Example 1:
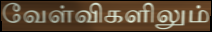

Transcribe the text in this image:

வேள்விகளிலும்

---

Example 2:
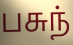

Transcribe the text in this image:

பசுந்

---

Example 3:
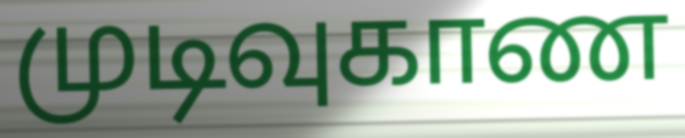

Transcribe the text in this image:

முடிவுகாண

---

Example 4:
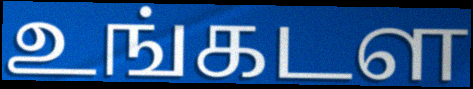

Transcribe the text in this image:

உங்கடள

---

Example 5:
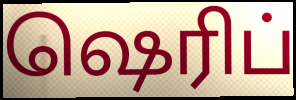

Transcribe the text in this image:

ஷெரிப்